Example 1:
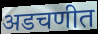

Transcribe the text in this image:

अडचणीत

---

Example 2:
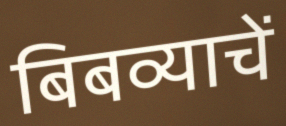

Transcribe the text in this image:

बिबव्याचें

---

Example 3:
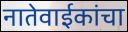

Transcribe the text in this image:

नातेवाईकांचा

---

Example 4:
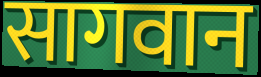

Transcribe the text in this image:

सागवान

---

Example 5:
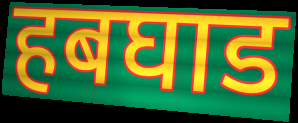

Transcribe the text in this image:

हबघाड